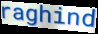
raghind